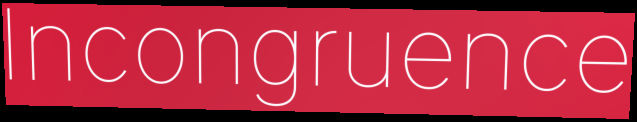
Incongruence